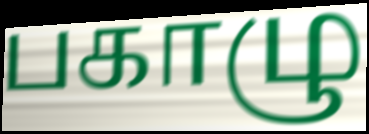
பகாழு